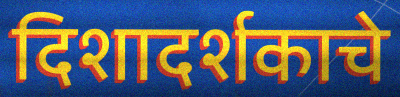
दिशादर्शकाचे